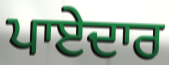
ਪਾਏਦਾਰ